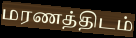
மரணத்திடம்